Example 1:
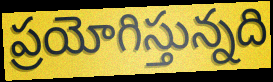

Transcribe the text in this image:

ప్రయోగిస్తున్నది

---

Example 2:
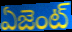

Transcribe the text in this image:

ఏజెంట్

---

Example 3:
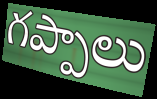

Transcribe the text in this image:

గప్పాలు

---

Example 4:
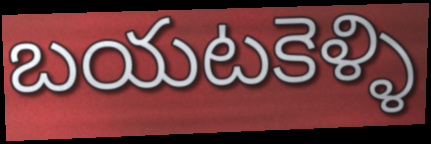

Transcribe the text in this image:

బయటకెళ్ళి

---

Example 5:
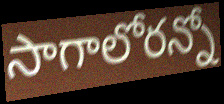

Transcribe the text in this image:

సాగాలోరన్నో